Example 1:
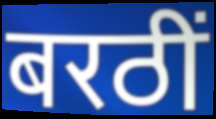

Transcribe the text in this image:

बरठीं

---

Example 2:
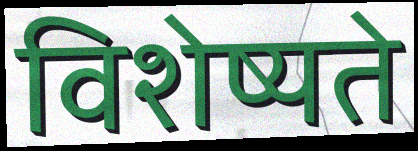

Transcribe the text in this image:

विशेष्यते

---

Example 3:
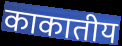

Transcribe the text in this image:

काकातीय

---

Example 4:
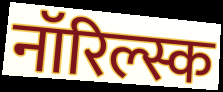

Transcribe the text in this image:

नॉरिल्स्क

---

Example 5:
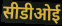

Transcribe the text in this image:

सीडीओई